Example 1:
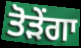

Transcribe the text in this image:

ਤੋੜੇਂਗਾ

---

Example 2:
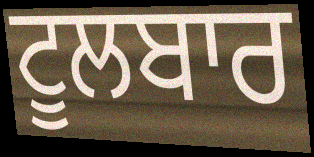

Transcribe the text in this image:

ਟੂਲਬਾਰ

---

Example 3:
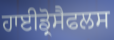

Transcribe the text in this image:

ਹਾਈਡ੍ਰੋਸੈਫਲਸ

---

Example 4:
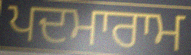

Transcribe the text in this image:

ਪਦਮਾਰਾਮ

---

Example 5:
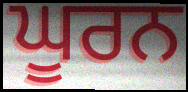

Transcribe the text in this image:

ਘੂਰਨ